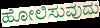
ಹೋಲಿಸುವುದು